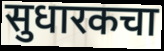
सुधारकचा